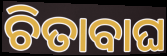
ଚିତାବାଘ